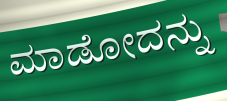
ಮಾಡೋದನ್ನು